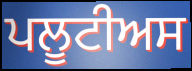
ਪਲੂਟੀਅਸ